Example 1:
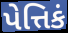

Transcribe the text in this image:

પેત્તિકં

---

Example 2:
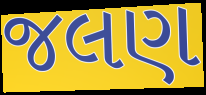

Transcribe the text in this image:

જલણ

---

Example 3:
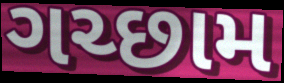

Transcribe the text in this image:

ગચ્છામ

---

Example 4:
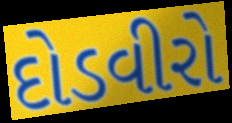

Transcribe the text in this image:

દોડવીરો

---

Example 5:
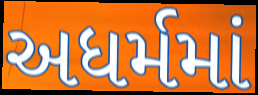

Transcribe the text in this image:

અધર્મમાં